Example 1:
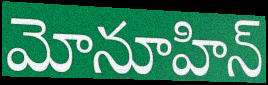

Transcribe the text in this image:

మోనూహిన్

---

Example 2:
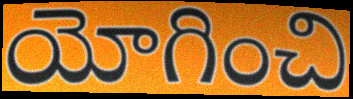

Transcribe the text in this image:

యోగించి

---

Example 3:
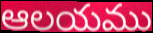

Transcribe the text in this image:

ఆలయము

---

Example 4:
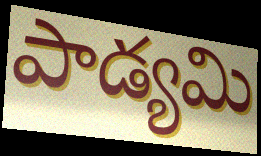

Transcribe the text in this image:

పాడ్యమి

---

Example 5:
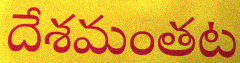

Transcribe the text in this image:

దేశమంతట